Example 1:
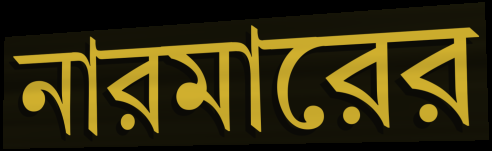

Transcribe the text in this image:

নারমারের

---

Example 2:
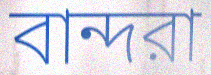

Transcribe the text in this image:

বান্দরা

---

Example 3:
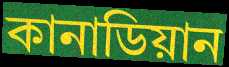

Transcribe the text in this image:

কানাডিয়ান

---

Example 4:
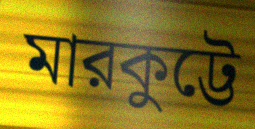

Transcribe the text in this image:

মারকুট্টে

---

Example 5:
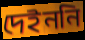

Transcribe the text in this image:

দেইননি